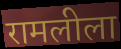
रामलीला